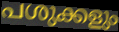
പശുക്കളും